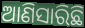
ଆଣିସାରିଛି